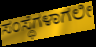
ಸಂಸ್ಥೆಗಳಾಗಲೀ